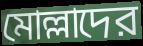
মোল্লাদের